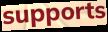
supports